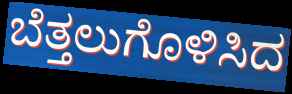
ಬೆತ್ತಲುಗೊಳಿಸಿದ